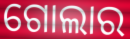
ଗୋଲାର